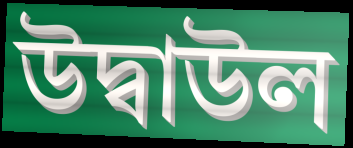
উদ্বাউল